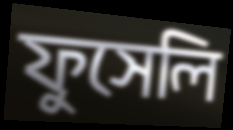
ফুসেলি